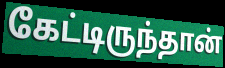
கேட்டிருந்தான்